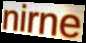
nirne